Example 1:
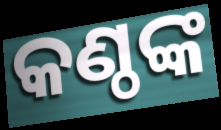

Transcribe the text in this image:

କଣ୍ଠଙ୍କ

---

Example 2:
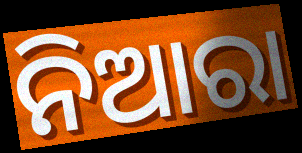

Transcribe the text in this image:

ନିଆରା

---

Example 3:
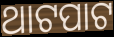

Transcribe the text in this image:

ଥାଟପାଟ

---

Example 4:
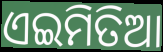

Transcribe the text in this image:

ଏଇମିତିଆ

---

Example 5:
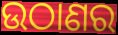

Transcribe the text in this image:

ଉଠାଣର